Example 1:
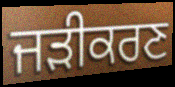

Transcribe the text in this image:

ਜੜੀਕਰਣ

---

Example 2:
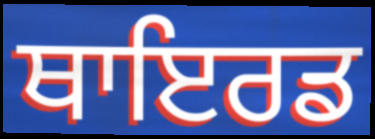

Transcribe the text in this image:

ਥਾਇਰਡ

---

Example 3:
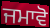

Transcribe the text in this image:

ਜਮਾਵੋ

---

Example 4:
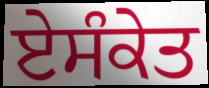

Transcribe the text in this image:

ਏਸੰਕੇਤ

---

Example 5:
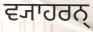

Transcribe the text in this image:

ਵ੍ਯਾਹਰਨ੍